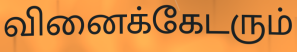
வினைக்கேடரும்